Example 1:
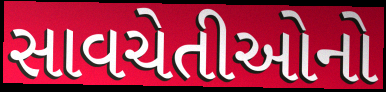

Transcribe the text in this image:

સાવચેતીઓનો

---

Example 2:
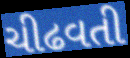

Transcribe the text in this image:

ચીઢવતી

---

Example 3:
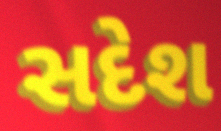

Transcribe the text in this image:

સદેશ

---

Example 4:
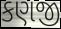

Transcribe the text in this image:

કણજી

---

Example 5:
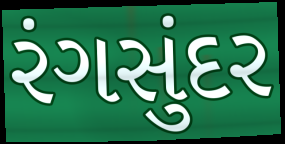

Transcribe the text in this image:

રંગસુંદર